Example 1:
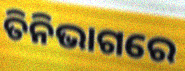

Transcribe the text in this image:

ତିନିଭାଗରେ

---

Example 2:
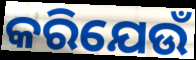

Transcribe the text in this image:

କରିଯେଉଁ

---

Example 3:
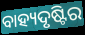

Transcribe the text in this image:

ବାହ୍ୟଦୃଷ୍ଟିର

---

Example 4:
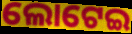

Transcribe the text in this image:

ଲୋଟେଇ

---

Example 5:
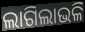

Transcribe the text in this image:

ଲାଗିଲାଭଳି